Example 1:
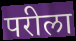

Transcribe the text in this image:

परीला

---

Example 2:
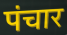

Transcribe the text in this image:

पंचार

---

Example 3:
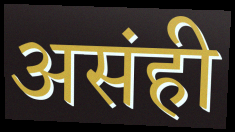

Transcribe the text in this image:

असंही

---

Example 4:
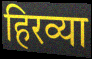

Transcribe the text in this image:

हिरव्या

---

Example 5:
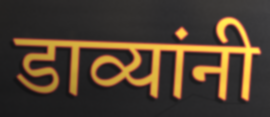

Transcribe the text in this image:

डाव्यांनी